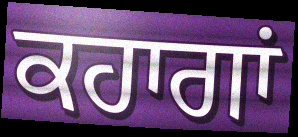
ਕਹਾਗਾਂ